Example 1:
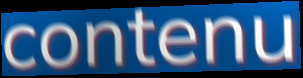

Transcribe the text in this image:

contenu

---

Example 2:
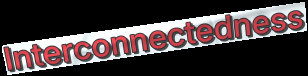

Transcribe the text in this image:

Interconnectedness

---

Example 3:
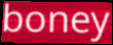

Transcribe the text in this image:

boney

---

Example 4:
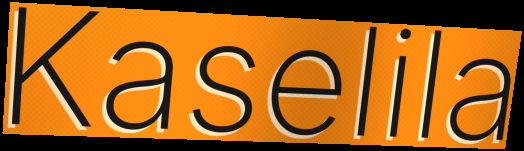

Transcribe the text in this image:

Kaselila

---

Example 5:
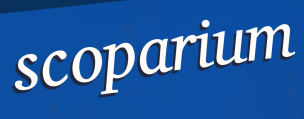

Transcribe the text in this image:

scoparium